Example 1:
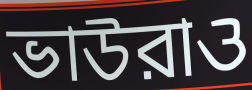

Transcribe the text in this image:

ভাউরাও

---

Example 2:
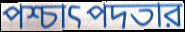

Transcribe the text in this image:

পশ্চাৎপদতার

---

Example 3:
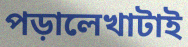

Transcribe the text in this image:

পড়ালেখাটাই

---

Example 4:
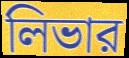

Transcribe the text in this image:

লিভার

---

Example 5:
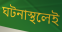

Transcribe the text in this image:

ঘটনাস্থলেই